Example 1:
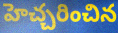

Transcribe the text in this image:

హెచ్చరించిన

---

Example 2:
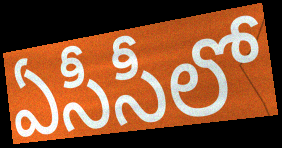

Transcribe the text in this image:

ఏసీసీలో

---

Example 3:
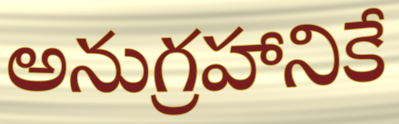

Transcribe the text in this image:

అనుగ్రహానికే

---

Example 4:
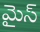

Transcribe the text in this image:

మైస్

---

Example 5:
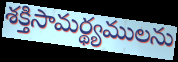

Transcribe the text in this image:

శక్తిసామర్థ్యములను